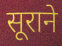
सूराने